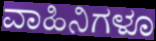
ವಾಹಿನಿಗಳೂ